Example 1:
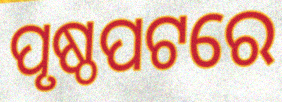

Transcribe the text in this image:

ପୃଷ୍ଠପଟରେ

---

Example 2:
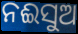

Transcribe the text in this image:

ନଈସୁଅ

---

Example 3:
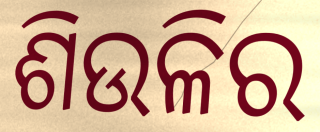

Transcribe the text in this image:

ଶିଉଳିର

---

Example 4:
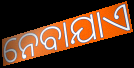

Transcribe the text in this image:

ନେବାଯାଏ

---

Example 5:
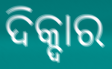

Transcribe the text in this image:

ଦିକ୍ଦାର